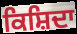
ਕਿਸ਼ਿਦਾ